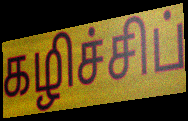
கழிச்சிப்